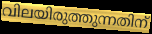
വിലയിരുത്തുന്നതിന്